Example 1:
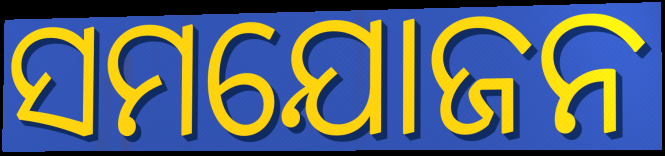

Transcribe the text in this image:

ସମଯୋଜନ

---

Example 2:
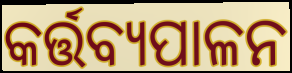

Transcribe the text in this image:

କର୍ତ୍ତବ୍ୟପାଳନ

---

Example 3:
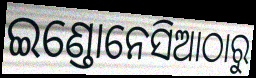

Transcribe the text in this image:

ଇଣ୍ଡୋନେସିଆଠାରୁ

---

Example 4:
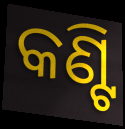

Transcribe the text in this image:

କଣ୍ଟି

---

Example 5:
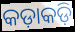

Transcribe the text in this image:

କଡ଼ାକଡ଼ି